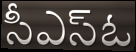
సీఎస్ఓ